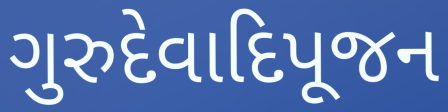
ગુરુદેવાદિપૂજન